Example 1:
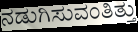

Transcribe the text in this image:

ನಡುಗಿಸುವಂತಿತ್ತು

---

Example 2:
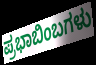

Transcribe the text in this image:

ಪ್ರಭಾಬಿಂಬಗಳು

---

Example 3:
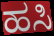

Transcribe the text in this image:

ಹಸಿ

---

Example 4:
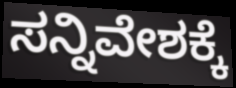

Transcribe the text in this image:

ಸನ್ನಿವೇಶಕ್ಕೆ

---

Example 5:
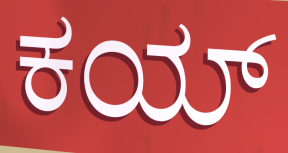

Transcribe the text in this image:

ಕಯ್